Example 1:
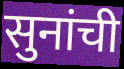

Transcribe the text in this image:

सुनांची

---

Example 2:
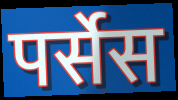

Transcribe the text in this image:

पर्सेस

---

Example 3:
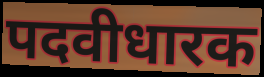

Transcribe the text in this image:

पदवीधारक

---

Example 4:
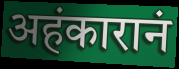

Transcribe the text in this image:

अहंकारानं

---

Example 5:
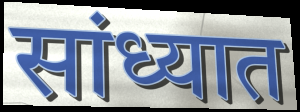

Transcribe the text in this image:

सांध्यात